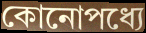
কোনোপধ্যে